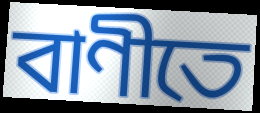
বাণীতে